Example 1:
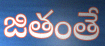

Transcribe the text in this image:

జితంతే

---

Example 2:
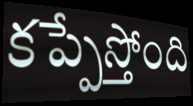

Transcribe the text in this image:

కప్పేస్తోంది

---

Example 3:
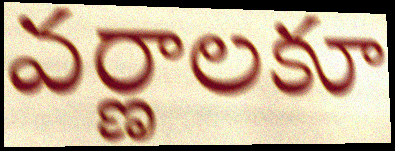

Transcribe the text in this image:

వర్ణాలకూ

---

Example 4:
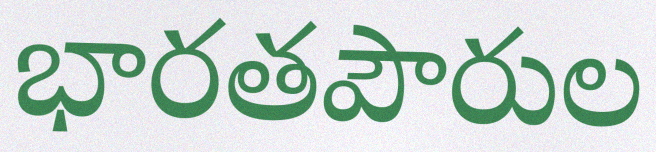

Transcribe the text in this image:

భారతపౌరుల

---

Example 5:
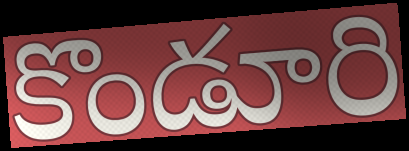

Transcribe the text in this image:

కొండూరి